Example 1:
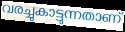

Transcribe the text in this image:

വരച്ചുകാട്ടുന്നതാണ്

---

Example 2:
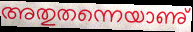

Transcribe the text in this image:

അതുതന്നെയാണു്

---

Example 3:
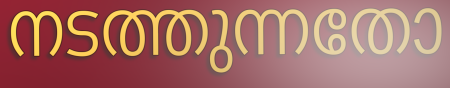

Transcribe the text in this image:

നടത്തുന്നതോ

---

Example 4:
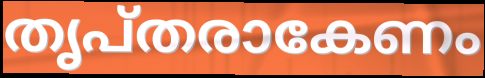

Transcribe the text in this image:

തൃപ്തരാകേണം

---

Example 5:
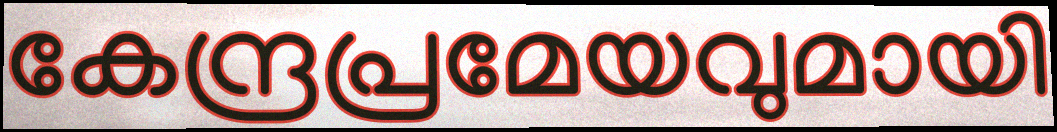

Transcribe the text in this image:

കേന്ദ്രപ്രമേയവുമായി